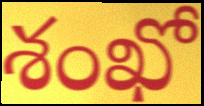
శంఖో